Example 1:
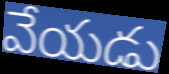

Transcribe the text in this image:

వేయడు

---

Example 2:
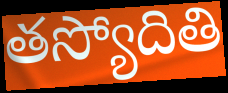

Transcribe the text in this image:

తస్యోదితి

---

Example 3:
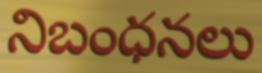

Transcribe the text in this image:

నిబంధనలు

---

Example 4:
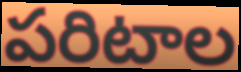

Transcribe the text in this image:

పరిటాల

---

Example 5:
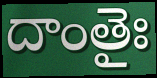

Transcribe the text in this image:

దాంతైః